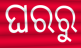
ଘରରୁ